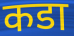
कडा